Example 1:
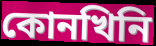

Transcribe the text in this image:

কোনখিনি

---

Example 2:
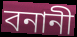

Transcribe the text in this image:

বনানী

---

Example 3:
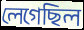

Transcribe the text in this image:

লেগেছিল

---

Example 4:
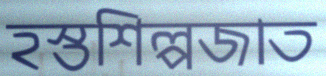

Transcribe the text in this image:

হস্তশিল্পজাত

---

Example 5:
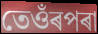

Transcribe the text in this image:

তেওঁৰপৰা